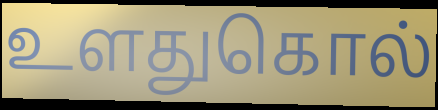
உளதுகொல்